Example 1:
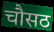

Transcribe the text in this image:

चौसठ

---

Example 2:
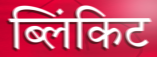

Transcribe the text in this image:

ब्लिंकिट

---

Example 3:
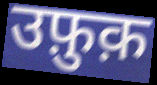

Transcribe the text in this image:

उफ़ुक़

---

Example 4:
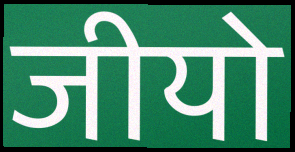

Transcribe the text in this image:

जीयो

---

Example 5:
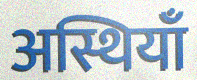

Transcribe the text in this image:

अस्थियाँ